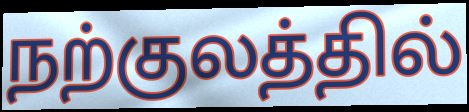
நற்குலத்தில்